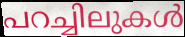
പറച്ചിലുകൾ